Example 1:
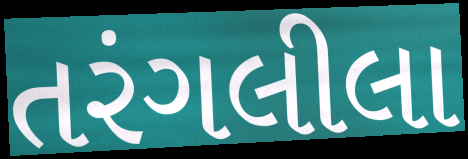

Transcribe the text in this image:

તરંગલીલા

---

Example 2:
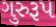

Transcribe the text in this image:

ગુરુરૂપ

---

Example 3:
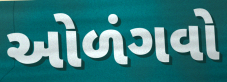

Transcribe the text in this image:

ઓળંગવો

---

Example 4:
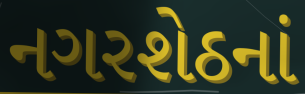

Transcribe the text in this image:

નગરશેઠનાં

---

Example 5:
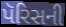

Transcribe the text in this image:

પૅરિસની